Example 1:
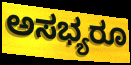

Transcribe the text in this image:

ಅಸಭ್ಯರೂ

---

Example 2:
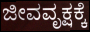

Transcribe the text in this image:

ಜೀವವೃಕ್ಷಕ್ಕೆ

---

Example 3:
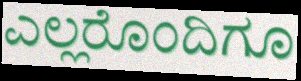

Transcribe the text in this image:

ಎಲ್ಲರೊಂದಿಗೂ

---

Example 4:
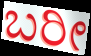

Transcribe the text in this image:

ಬರೀ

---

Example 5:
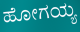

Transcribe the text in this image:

ಹೋಗಯ್ಯ